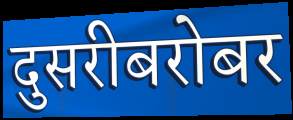
दुसरीबरोबर